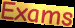
Exams